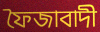
ফৈজাবাদী